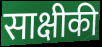
साक्षीकी